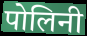
पोलिनी